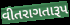
વીતરાગતારૂપ